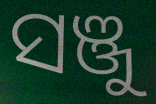
ସଞ୍ଜୁ